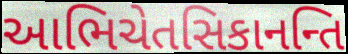
આભિચેતસિકાનન્તિ